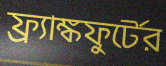
ফ্র্যাঙ্কফুর্টের